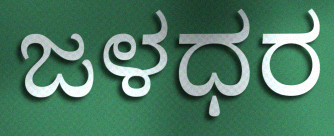
ಜಳಧರ